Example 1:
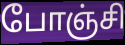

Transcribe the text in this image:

போஞ்சி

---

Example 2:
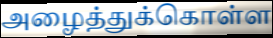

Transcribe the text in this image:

அழைத்துக்கொள்ள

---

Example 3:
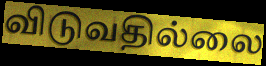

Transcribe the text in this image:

விடுவதில்லை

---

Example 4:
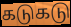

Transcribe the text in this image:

கடுகடு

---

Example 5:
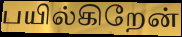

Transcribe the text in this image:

பயில்கிறேன்